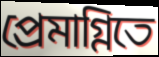
প্রেমাগ্নিতে